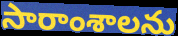
సారాంశాలను